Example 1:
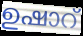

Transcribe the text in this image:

ഉഷാറ്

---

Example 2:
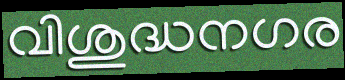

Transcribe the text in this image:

വിശുദ്ധനഗര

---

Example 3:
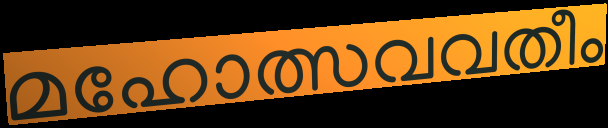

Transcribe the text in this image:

മഹോത്സവവതീം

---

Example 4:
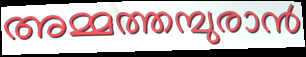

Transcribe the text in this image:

അമ്മത്തമ്പുരാൻ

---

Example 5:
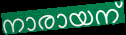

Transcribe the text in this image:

നാരായന്